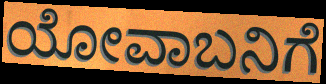
ಯೋವಾಬನಿಗೆ